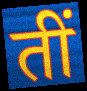
तीं